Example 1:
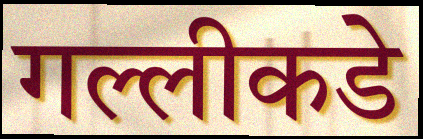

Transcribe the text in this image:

गल्लीकडे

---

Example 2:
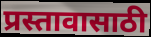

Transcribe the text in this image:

प्रस्तावासाठी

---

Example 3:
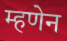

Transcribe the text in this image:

म्हणेन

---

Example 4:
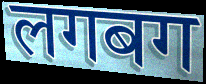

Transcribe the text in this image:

लगबग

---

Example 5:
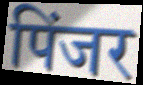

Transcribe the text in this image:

पिंजर